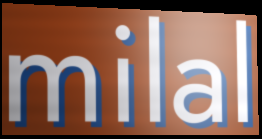
milal